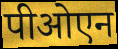
पीओएन